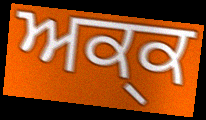
ਅਕ੍ਕ